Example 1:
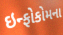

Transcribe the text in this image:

ઇન્ફોકોમના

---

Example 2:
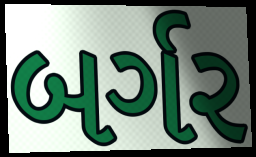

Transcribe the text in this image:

બર્ગર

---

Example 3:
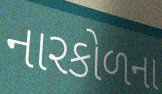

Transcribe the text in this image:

નારકોળના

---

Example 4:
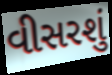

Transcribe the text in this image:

વીસરશું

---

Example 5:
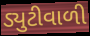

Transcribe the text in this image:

ડ્યુટીવાળી